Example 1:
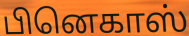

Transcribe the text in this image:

பினெகாஸ்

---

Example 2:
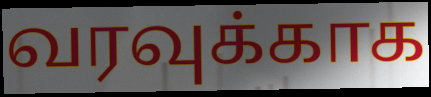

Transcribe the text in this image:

வரவுக்காக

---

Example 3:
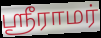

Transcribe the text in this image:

ஶ்ரீராமர்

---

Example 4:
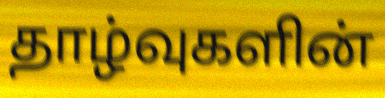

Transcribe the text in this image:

தாழ்வுகளின்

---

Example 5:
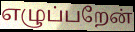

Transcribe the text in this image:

எழுப்பறேன்